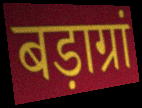
बड़ाग्रां